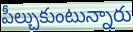
పీల్చుకుంటున్నారు